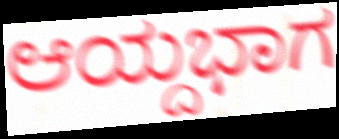
ಆಯ್ದಭಾಗ